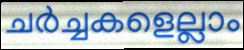
ചർച്ചകളെല്ലാം